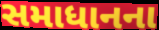
સમાધાનના